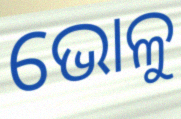
ଭୋଳୁ